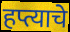
हप्त्याचे